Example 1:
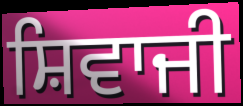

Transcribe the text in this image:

ਸ਼ਿਵਾਜੀ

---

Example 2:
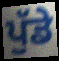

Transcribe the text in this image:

ਪੁੱਡੇ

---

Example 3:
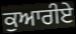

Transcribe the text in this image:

ਕੁਆਰੀਏ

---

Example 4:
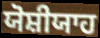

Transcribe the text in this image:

ਯੋਸ਼ੀਯਾਹ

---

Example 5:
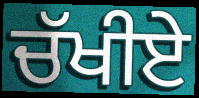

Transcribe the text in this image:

ਚੱਖੀਏ